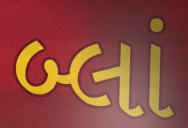
બ્લાં